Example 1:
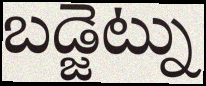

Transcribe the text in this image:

బడ్జెట్ను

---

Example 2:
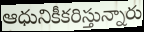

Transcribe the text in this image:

ఆధునికీకరిస్తున్నారు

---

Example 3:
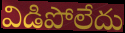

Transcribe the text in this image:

విడిపోలేదు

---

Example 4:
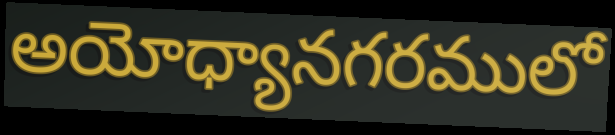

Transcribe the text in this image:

అయోధ్యానగరములో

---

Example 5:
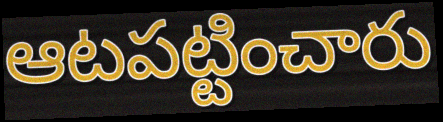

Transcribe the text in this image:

ఆటపట్టించారు